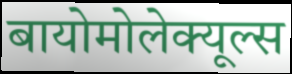
बायोमोलेक्यूल्स